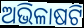
ଅଭିଳାଷଟି